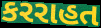
કરરાહત